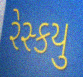
રેસ્કયુ